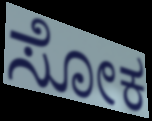
ಸೋಕ